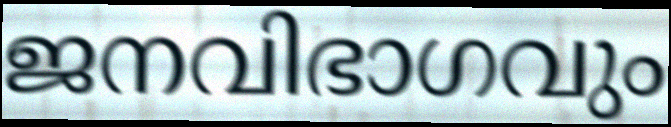
ജനവിഭാഗവും